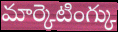
మార్కెటింగ్కు